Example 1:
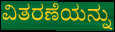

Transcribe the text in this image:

ವಿತರಣೆಯನ್ನು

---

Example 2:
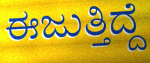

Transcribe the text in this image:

ಈಜುತ್ತಿದ್ದೆ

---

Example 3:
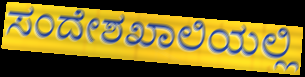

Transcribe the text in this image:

ಸಂದೇಶಖಾಲಿಯಲ್ಲಿ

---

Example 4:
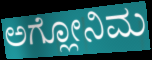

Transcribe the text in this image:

ಅಗ್ಲೋನಿಮ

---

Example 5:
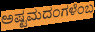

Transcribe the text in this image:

ಅಷ್ಟಮದಂಗಳೆಂಬ